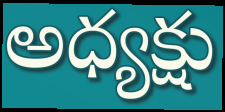
అధ్యక్షు